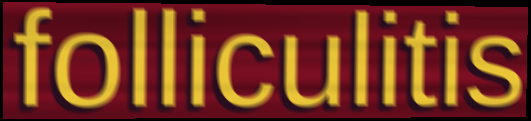
folliculitis